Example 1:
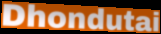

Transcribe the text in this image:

Dhondutai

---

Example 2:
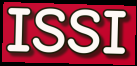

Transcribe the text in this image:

ISSI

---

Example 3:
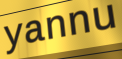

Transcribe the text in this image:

yannu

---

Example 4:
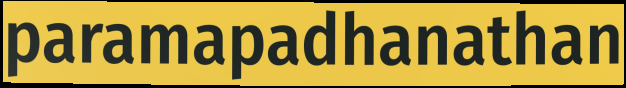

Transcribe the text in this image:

paramapadhanathan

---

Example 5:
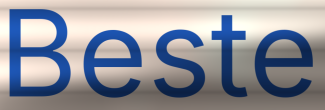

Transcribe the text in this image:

Beste